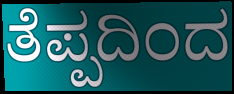
ತೆಪ್ಪದಿಂದ